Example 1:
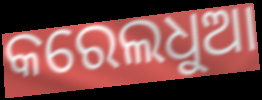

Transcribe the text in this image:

କରେଲଧୁଆ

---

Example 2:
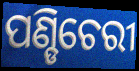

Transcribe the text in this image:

ପଣ୍ଡିଚେରୀ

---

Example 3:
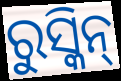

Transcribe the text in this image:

ରୁସ୍କିନ୍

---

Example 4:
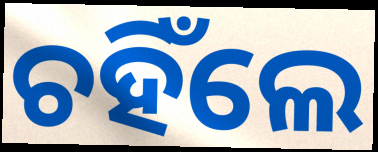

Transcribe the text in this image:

ଚହିଁଲେ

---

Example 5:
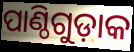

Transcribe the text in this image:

ପାଣ୍ଠିଗୁଡ଼ାକ